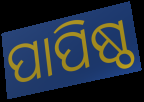
ପାପିଷ୍ଠ